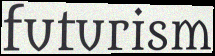
futurism